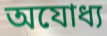
অযোধ্য